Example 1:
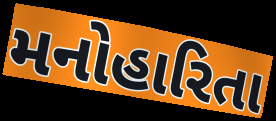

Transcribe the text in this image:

મનોહારિતા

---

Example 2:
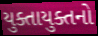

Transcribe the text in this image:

યુક્તાયુક્તનો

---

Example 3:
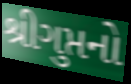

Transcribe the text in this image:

શ્રીગુપ્તનો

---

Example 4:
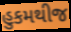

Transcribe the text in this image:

હુકમથીજ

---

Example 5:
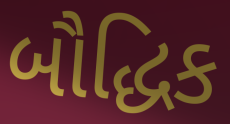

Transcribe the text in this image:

બૌદ્ધિક